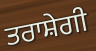
ਤਰਾਸ਼ੇਗੀ